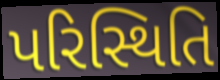
પરિસ્થિતિ